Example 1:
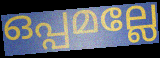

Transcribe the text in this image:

ഒപ്പമല്ലേ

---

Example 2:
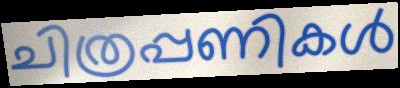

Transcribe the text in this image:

ചിത്രപ്പണികൾ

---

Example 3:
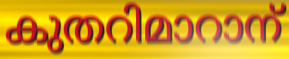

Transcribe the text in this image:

കുതറിമാറാന്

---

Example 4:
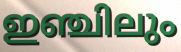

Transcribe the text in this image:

ഇഞ്ചിലും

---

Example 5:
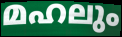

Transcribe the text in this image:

മഹലും